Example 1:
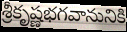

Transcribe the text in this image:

శ్రీకృష్ణభగవానునికి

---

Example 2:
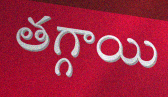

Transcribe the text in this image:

తగ్గాయి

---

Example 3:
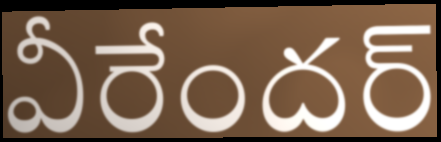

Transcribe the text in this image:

వీరేందర్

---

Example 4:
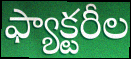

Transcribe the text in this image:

ఫ్యాక్టరీల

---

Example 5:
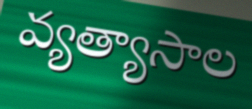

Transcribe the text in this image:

వ్యత్యాసాల